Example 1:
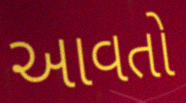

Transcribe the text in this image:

આવતો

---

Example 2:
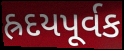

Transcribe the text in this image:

હ્રદયપૂર્વક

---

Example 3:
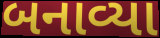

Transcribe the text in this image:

બનાવ્યા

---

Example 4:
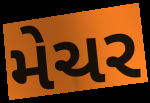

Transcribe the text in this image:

મેચર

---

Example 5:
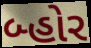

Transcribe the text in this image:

બ્હોર